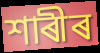
শাৰীৰ